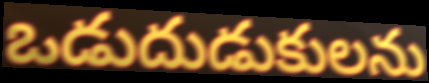
ఒడుదుడుకులను